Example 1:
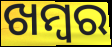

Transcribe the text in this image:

ଖମ୍ୱର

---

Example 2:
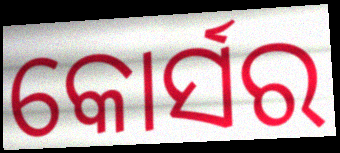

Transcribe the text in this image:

କୋର୍ସର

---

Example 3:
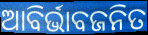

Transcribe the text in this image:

ଆବିର୍ଭାବଜନିତ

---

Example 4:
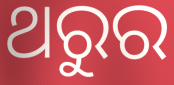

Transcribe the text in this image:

ଥରୁର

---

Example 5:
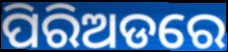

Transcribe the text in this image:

ପିରିଅଡରେ